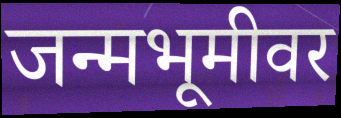
जन्मभूमीवर